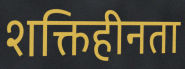
शक्तिहीनता